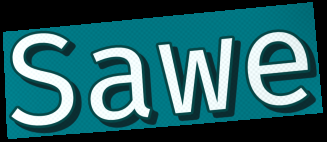
Sawe